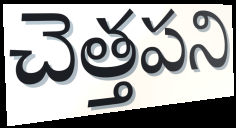
చెత్తపని